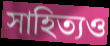
সাহিত্যও